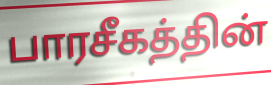
பாரசீகத்தின்